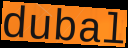
dubal